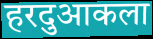
हरदुआकला